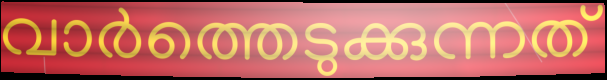
വാർത്തെടുക്കുന്നത്